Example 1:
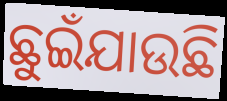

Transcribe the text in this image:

ଛୁଇଁଯାଉଛି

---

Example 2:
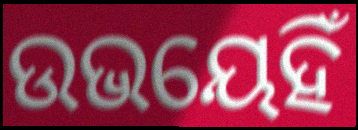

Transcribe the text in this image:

ଉଭୟେହିଁ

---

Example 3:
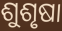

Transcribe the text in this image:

ଶୁଶୃଷା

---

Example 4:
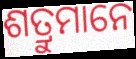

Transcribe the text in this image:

ଶତ୍ରୁମାନେ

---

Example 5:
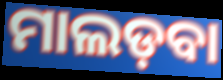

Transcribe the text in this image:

ମାଲଡ଼ବା